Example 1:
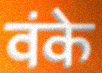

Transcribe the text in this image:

वंके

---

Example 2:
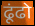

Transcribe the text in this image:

ढूंढो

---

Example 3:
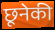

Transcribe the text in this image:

छूनेकी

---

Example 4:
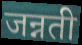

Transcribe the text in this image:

जन्नती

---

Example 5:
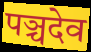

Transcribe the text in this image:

पञ्चदेव